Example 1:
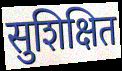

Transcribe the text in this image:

सुशिक्षित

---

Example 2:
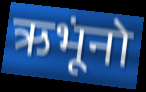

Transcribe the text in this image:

ऋभूंनो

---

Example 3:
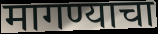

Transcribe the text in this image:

मागण्याचा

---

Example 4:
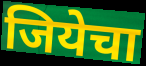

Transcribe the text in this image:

जियेचा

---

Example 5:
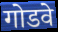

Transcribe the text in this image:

गोडवे